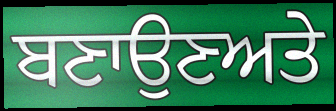
ਬਣਾਉਣਅਤੇ